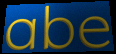
abe